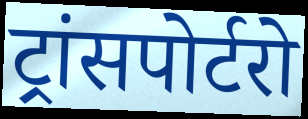
ट्रांसपोर्टरो